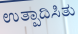
ಉತ್ಪಾದಿಸಿತು